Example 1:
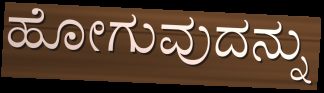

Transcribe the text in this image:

ಹೋಗುವುದನ್ನು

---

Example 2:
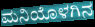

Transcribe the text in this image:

ಮನಿಯೊಳಗಿನ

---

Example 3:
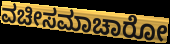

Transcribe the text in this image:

ವಚೀಸಮಾಚಾರೋ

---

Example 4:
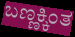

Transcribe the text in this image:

ಬಣ್ಣಕ್ಕಿಂತ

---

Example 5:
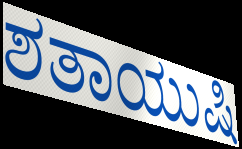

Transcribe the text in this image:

ಶತಾಯುಷಿ